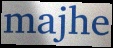
majhe